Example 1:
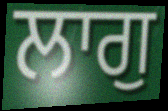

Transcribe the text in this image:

ਲਾਗੁ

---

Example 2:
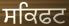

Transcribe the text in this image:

ਸਕਿਫਟ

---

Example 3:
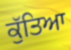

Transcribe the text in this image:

ਕੁੱਤਿਆ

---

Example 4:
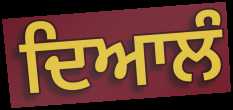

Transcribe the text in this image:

ਦਿਆਲੰ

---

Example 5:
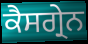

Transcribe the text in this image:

ਕੈਸਗ੍ਰੇਨ